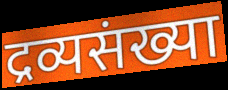
द्रव्यसंख्या